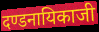
दण्डनायिकाजी